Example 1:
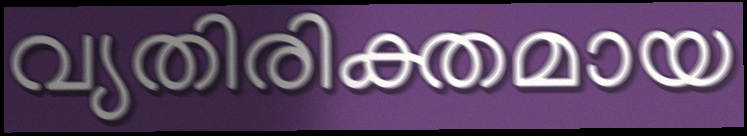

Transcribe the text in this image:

വ്യതിരിക്തമായ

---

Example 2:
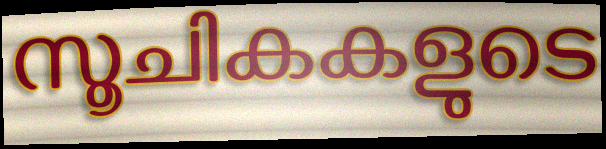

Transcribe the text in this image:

സൂചികകളുടെ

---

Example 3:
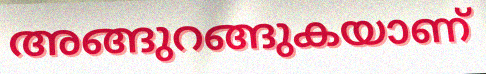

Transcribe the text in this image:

അങ്ങുറങ്ങുകയാണ്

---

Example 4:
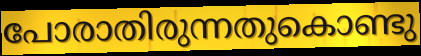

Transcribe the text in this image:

പോരാതിരുന്നതുകൊണ്ടു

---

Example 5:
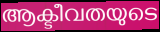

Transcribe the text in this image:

ആക്ടീവതയുടെ